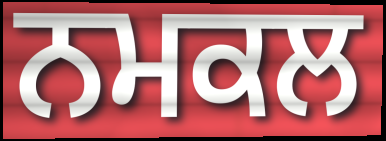
ਨਮਕਲ